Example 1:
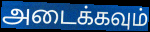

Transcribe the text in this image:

அடைக்கவும்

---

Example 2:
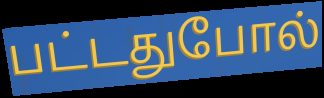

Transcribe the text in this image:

பட்டதுபோல்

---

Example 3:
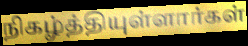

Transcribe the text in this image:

நிகழ்த்தியுள்ளார்கள்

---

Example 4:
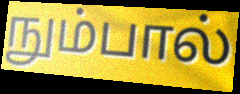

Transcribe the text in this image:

நும்பால்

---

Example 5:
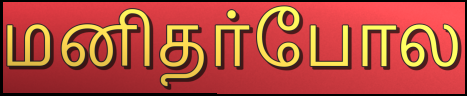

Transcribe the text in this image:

மனிதர்போல